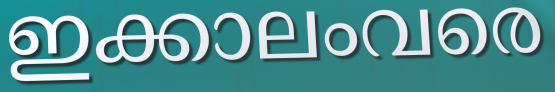
ഇക്കാലംവരെ